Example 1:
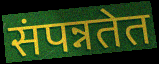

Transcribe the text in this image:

संपन्नतेत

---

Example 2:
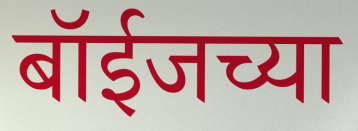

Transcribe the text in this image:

बॉईजच्या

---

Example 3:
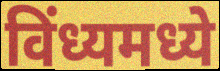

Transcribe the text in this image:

विंध्यमध्ये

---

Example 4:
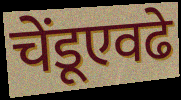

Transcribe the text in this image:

चेंडूएवढे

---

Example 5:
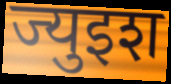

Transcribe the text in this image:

ज्युइश